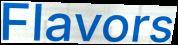
Flavors